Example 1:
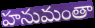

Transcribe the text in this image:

హనుమంతా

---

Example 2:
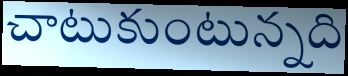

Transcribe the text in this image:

చాటుకుంటున్నది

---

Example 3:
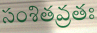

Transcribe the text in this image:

సంశితవ్రతః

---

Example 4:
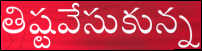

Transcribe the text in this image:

తిష్టవేసుకున్న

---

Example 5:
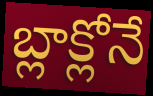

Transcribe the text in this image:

బ్లాక్లోనే